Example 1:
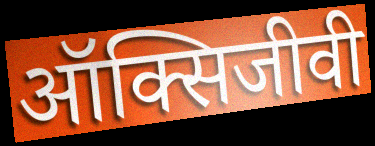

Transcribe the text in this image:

ऑक्सिजीवी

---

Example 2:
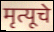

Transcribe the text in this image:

मृत्यूचे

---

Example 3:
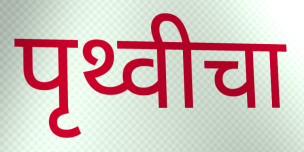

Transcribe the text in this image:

पृथ्वीचा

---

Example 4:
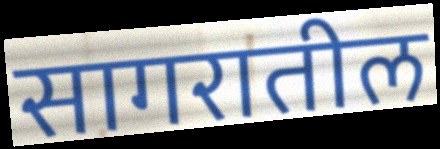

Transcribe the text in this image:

सागरातील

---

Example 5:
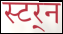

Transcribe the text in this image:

स्टर्न